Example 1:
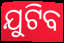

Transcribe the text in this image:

ଯୁଟିବ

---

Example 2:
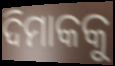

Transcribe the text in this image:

ଦିମାକକୁ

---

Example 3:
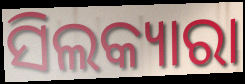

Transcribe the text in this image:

ସିଲକ୍ୟାରା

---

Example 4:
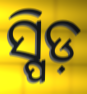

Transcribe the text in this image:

ସ୍ପିଡ଼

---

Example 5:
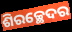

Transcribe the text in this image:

ଶିରଚ୍ଛେଦର